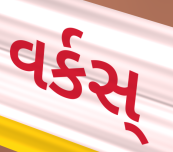
વર્કસ્